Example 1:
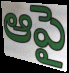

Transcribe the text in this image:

ఆపై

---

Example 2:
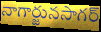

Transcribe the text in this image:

నాగార్జునసాగర్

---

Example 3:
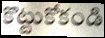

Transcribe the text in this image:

కొట్టుకోకండి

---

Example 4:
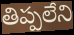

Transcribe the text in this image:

తిప్పలేని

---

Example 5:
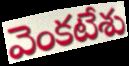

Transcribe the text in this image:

వెంకటేశు